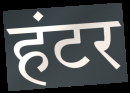
हंटर